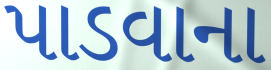
પાડવાના